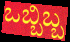
ಒಬ್ಬಿಬ್ಬ